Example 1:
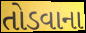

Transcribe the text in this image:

તોડવાના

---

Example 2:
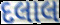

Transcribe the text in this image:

દલાલ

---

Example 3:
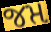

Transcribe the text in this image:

જપ્ત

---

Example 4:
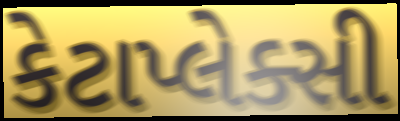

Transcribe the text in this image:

કેટાપ્લેક્સી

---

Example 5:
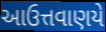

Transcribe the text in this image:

આઉત્તવાણયે